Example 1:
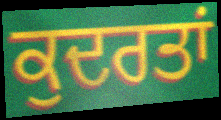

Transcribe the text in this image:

ਕੁਦਰਤਾਂ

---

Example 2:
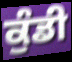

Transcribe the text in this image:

ਕੁੰਡੀ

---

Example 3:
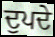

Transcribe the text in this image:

ਦੁਪਦੇ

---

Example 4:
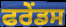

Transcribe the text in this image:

ਫਰੇਂਡਸ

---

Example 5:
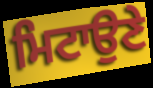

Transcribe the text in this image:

ਮਿਟਾਉਣੇ